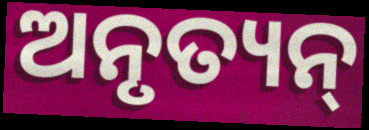
ଅନୃତ୍ୟନ୍